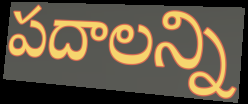
పదాలన్ని